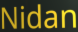
Nidan